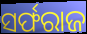
ସର୍ଫରାଜ